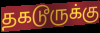
தகடூருக்கு